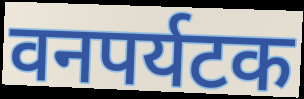
वनपर्यटक